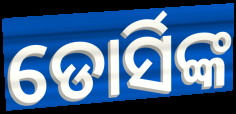
ଡୋର୍ସିଙ୍କ